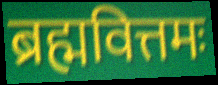
ब्रह्मवित्तमः